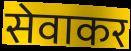
सेवाकर